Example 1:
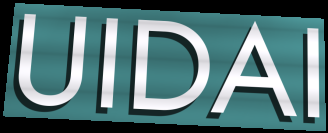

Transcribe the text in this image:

UIDAI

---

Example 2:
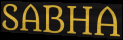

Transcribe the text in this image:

SABHA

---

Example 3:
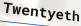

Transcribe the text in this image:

Twentyeth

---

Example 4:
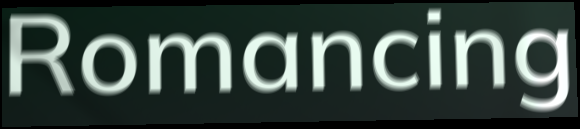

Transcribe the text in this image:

Romancing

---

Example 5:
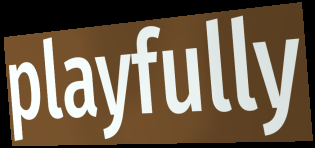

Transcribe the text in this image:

playfully